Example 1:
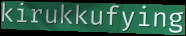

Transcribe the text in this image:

kirukkufying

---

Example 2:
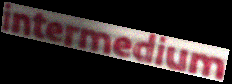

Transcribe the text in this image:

intermedium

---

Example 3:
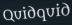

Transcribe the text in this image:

Quidquid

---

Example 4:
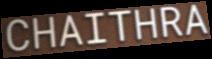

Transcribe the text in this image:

CHAITHRA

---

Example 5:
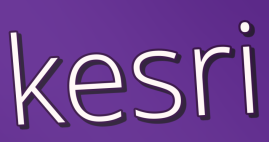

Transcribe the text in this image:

kesri